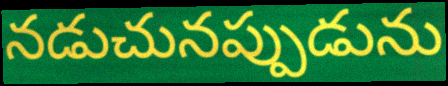
నడుచునప్పుడును